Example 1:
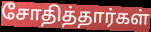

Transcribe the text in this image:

சோதித்தார்கள்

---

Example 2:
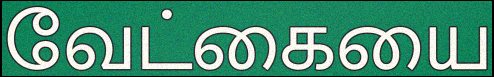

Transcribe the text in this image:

வேட்கையை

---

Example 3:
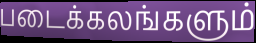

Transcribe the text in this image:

படைக்கலங்களும்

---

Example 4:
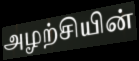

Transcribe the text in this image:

அழற்சியின்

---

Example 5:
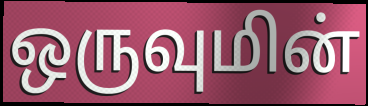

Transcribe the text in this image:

ஒருவுமின்